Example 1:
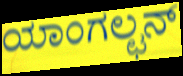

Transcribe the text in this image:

ಯಾಂಗಲ್ಟನ್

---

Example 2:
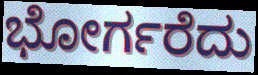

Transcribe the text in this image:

ಭೋರ್ಗರೆದು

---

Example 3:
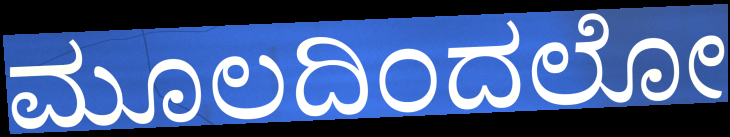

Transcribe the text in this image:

ಮೂಲದಿಂದಲೋ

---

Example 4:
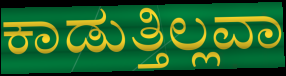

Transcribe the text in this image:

ಕಾಡುತ್ತಿಲ್ಲವಾ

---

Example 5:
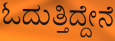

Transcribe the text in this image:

ಓದುತ್ತಿದ್ದೇನೆ